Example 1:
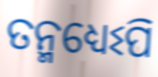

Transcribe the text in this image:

ତନ୍ମଧ୍ୟେଽପି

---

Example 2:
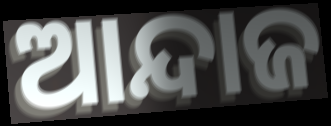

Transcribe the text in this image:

ଆନ୍ଦାଜ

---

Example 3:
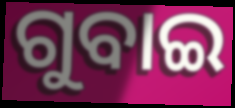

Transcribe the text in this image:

ଗୁବାଇ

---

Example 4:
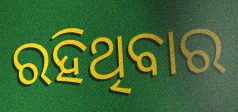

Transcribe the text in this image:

ରହିଥିବାର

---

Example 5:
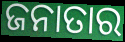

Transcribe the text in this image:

ଜନାତାର